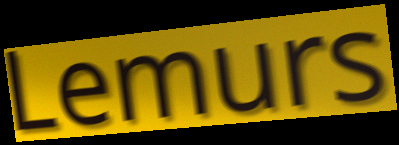
Lemurs